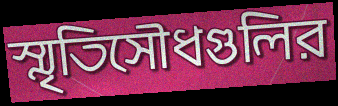
স্মৃতিসৌধগুলির